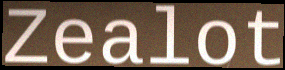
Zealot